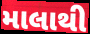
માલાથી